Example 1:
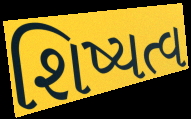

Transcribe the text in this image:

શિષ્યત્વ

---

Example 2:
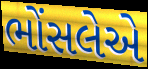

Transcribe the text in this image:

ભોંસલેએ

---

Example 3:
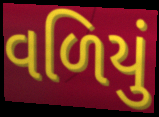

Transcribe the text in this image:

વળિયું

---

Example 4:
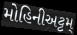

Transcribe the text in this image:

મોહિનીઅટ્ટમ્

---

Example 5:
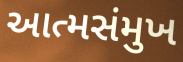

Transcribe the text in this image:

આત્મસંમુખ